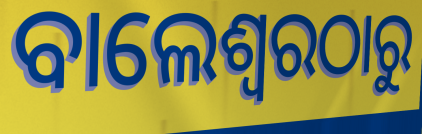
ବାଲେଶ୍ବରଠାରୁ